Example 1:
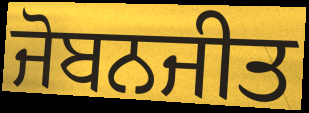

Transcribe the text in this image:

ਜੋਬਨਜੀਤ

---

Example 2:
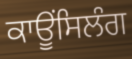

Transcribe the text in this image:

ਕਾਊਂਸਿਲੰਗ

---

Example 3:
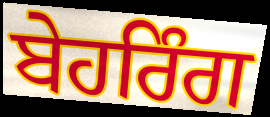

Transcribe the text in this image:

ਬੇਹਰਿੰਗ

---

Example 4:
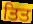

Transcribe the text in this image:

ਤਿਤ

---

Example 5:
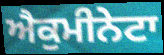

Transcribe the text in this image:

ਐਕੁਮੀਨੇਟਾ